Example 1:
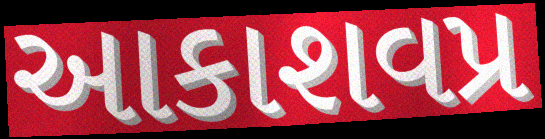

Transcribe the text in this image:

આકાશવપ્ર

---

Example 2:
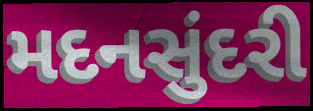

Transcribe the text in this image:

મદનસુંદરી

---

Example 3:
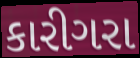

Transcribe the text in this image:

કારીગરા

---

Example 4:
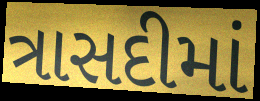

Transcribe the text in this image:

ત્રાસદીમાં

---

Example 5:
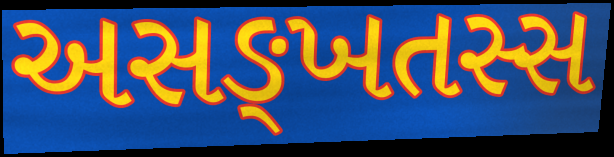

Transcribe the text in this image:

અસઙ્ખતસ્સ